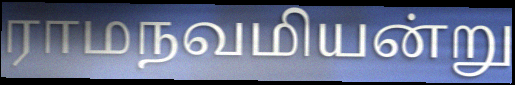
ராமநவமியன்று